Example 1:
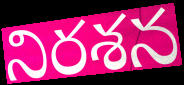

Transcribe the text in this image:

నిరశన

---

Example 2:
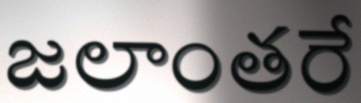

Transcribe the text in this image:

జలాంతరే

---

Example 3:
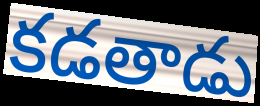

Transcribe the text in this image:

కడతాడు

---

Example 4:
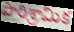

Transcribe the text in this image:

పారిశ్రామిక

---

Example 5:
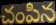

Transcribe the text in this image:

చంపిన